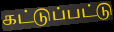
கட்டுப்பட்டு